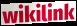
wikilink